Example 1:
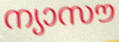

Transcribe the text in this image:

ന്യാസൗ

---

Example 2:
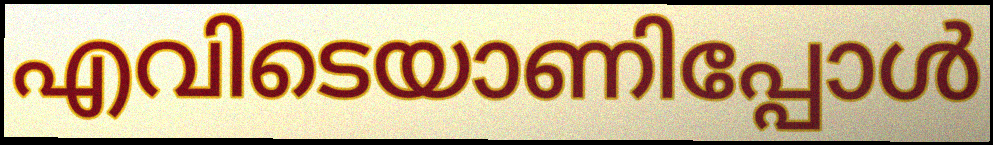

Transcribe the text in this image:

എവിടെയാണിപ്പോൾ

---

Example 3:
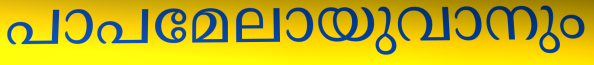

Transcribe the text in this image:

പാപമേലായുവാനും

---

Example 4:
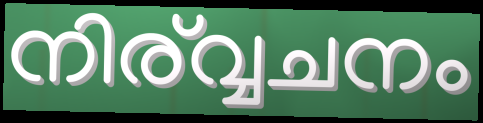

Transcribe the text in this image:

നിര്വ്വചനം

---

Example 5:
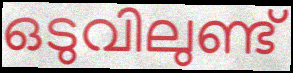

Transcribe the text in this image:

ഒടുവിലുണ്ട്